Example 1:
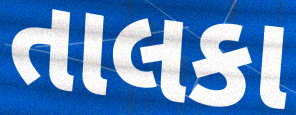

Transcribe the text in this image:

તાલકા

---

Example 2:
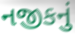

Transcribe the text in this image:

નજીકનું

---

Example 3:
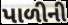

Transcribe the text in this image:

પાળીની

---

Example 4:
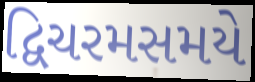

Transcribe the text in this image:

દ્વિચરમસમયે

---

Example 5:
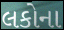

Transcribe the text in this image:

લકોના